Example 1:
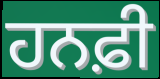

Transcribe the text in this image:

ਹਨਫ਼ੀ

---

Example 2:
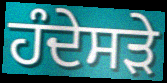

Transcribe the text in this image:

ਹੰਦੇਸੜੇ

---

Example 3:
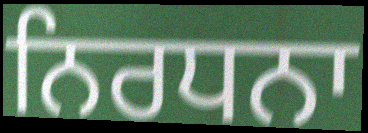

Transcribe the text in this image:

ਨਿਰਧਨਾ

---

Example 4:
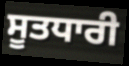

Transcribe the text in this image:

ਸੂਤਧਾਰੀ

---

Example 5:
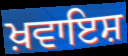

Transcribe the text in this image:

ਖ਼ਵਾਇਸ਼